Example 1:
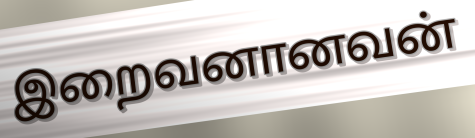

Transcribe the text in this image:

இறைவனானவன்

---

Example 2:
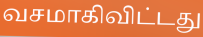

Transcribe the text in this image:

வசமாகிவிட்டது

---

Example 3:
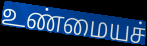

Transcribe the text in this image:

உண்மையச்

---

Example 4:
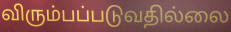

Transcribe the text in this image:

விரும்பப்படுவதில்லை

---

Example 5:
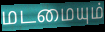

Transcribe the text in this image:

மடமையும்